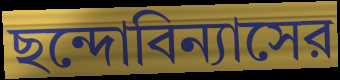
ছন্দোবিন্যাসের